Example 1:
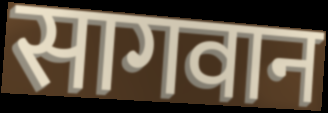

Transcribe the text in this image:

सागवान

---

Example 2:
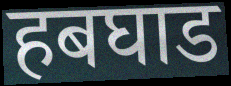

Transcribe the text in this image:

हबघाड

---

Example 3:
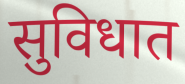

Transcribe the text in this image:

सुविधात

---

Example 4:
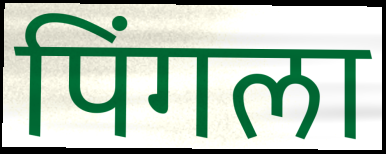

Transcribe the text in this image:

पिंगला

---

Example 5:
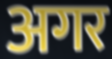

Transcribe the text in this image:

अगर